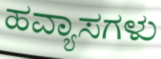
ಹವ್ಯಾಸಗಳು